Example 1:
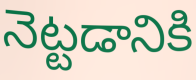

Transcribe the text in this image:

నెట్టడానికి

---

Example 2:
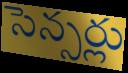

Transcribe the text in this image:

సెన్సర్లు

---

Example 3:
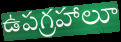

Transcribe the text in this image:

ఉపగ్రహాలూ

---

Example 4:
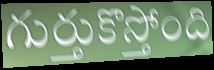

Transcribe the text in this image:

గుర్తుకొస్తోంది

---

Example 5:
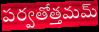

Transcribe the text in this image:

పర్వతోత్తమమ్